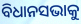
ବିଧାନସଭାକୁ